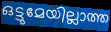
ഒട്ടുമേയില്ലാത്ത